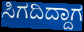
ಸಿಗದಿದ್ದಾಗ